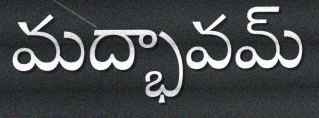
మద్భావమ్